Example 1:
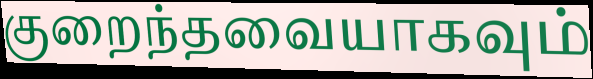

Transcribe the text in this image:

குறைந்தவையாகவும்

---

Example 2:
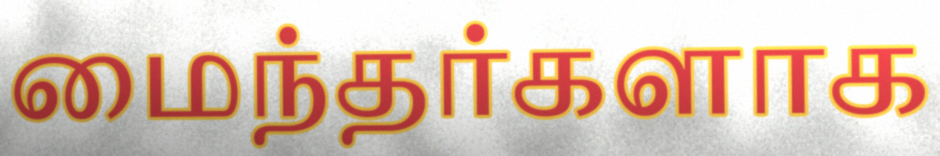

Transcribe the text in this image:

மைந்தர்களாக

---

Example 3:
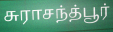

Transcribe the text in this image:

சுராசந்த்பூர்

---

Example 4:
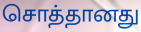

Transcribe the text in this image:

சொத்தானது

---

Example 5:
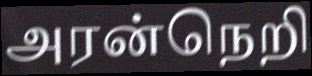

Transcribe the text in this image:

அரன்நெறி